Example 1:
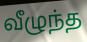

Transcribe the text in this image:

வீழுந்த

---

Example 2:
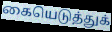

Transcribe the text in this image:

கையெடுத்துக்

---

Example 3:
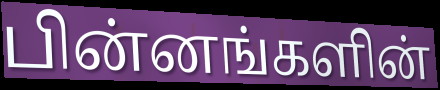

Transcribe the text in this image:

பின்னங்களின்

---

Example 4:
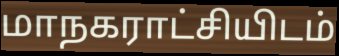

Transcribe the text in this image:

மாநகராட்சியிடம்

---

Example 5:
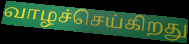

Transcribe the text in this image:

வாழச்செய்கிறது